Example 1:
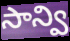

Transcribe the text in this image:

సాన్వి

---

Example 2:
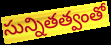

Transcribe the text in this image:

సున్నితత్వంతో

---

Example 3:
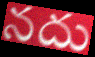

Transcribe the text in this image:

నదు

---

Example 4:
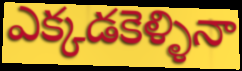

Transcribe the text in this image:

ఎక్కడకెళ్ళినా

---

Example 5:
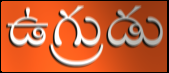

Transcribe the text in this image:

ఉగ్రుడు